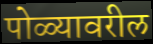
पोळ्यावरील